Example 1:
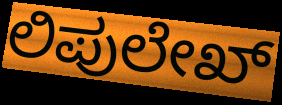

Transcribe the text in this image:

ಲಿಪುಲೇಖ್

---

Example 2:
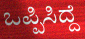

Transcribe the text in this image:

ಒಪ್ಪಿಸಿದ್ದೆ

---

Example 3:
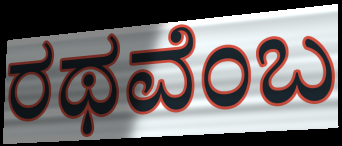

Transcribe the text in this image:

ರಥವೆಂಬ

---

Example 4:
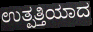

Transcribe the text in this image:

ಉತ್ಪತ್ತಿಯಾದ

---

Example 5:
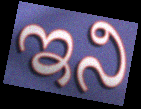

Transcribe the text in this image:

ಇನಿ